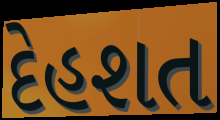
દેહશત